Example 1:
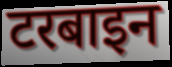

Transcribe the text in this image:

टरबाइन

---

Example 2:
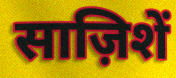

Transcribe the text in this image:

साज़िशें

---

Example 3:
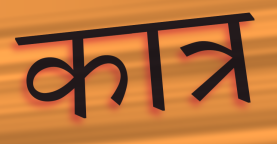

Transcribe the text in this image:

कात्र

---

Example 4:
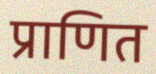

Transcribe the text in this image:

प्राणित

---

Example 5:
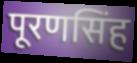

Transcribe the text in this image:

पूरणसिंह